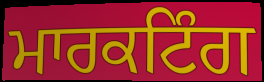
ਮਾਰਕਟਿੰਗ